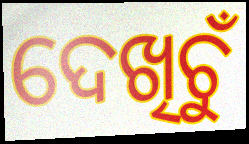
ଦେଖିଚୁଁ